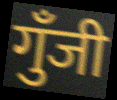
गुँजी